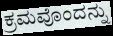
ಕ್ರಮವೊಂದನ್ನು